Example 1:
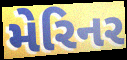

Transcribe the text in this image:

મેરિનર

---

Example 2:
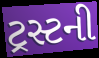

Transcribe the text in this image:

ટ્રસ્ટની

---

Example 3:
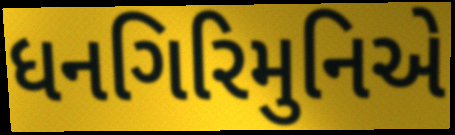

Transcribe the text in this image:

ધનગિરિમુનિએ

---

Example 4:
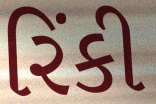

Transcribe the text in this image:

રિંકી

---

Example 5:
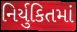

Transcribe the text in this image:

નિર્યુકિતમાં